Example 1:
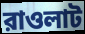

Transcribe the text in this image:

রাওলাট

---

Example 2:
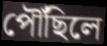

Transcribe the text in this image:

পৌঁছিলে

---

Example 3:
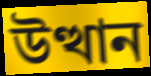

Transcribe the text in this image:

উত্থান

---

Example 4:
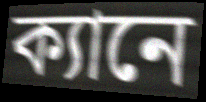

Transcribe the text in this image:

ক্যানে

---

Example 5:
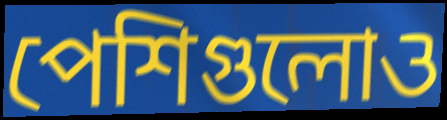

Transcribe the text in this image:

পেশিগুলোও